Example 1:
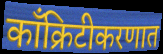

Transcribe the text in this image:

काँक्रिटीकरणात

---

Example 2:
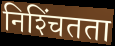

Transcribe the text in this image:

निश्चिंतता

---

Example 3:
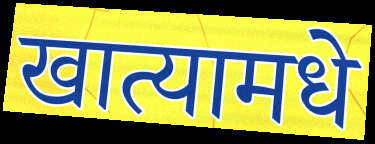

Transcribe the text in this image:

खात्यामधे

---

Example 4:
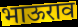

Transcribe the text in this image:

भाऊराव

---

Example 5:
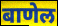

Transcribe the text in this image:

बाणेल